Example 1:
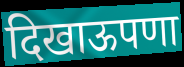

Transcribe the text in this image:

दिखाऊपणा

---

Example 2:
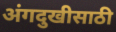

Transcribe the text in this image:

अंगदुखीसाठी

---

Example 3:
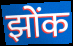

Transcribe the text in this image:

झोंक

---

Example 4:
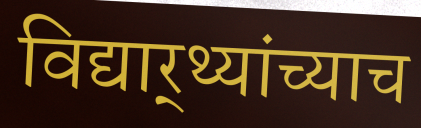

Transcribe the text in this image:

विद्यार्थ्यांच्याच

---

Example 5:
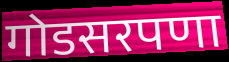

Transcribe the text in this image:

गोडसरपणा